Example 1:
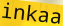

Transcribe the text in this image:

inkaa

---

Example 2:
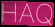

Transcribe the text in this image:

HAQ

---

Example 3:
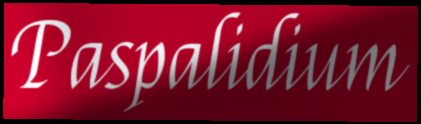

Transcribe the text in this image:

Paspalidium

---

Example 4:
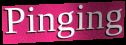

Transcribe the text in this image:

Pinging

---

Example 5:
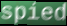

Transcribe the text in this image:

spied